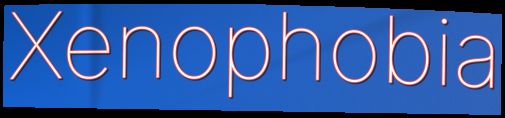
Xenophobia